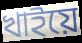
খাইয়ে